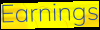
Earnings